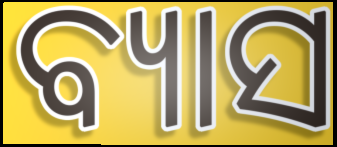
ବ୍ୟାସ